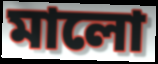
মালো